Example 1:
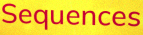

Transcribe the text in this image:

Sequences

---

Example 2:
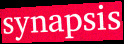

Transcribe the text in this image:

synapsis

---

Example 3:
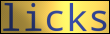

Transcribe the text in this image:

licks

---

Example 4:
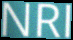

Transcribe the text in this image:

NRI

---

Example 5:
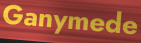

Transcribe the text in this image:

Ganymede